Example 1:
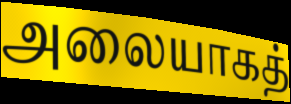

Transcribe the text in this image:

அலையாகத்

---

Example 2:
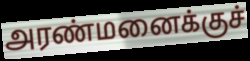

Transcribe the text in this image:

அரண்மனைக்குச்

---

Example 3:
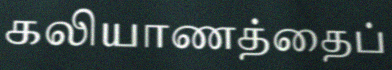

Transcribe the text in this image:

கலியாணத்தைப்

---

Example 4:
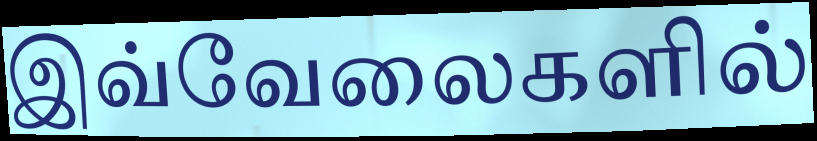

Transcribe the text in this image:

இவ்வேலைகளில்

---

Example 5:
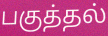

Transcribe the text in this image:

பகுத்தல்